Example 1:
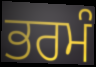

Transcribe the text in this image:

ਭਰਮੰ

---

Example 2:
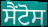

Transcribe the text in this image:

ਸੈਂਟੋਸ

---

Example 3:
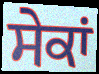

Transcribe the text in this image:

ਸੇਕਾਂ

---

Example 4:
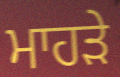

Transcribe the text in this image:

ਮਾਹੜੇ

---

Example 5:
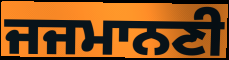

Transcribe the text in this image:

ਜਜਮਾਨਣੀ